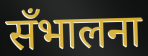
सँभालना